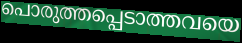
പൊരുത്തപ്പെടാത്തവയെ